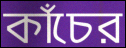
কাঁচের